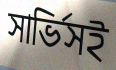
সার্ভিসই